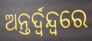
ଅନ୍ତର୍ଦ୍ୱନ୍ଦ୍ୱରେ